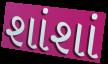
શાંશાં